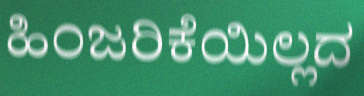
ಹಿಂಜರಿಕೆಯಿಲ್ಲದ